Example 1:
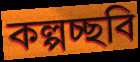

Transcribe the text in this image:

কল্পচ্ছবি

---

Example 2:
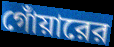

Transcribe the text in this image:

গোঁয়ারের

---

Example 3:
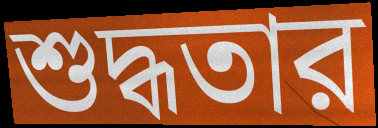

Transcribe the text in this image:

শুদ্ধতার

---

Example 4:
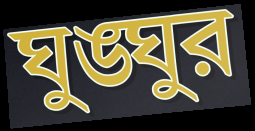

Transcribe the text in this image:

ঘুঙ্ঘুর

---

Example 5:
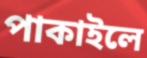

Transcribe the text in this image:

পাকাইলে